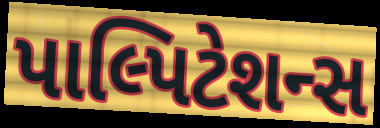
પાલ્પિટેશન્સ